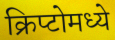
क्रिप्टोमध्ये